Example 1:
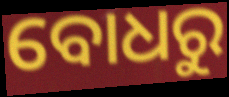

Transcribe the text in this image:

ବୋଧରୁ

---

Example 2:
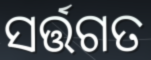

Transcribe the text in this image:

ସର୍ତ୍ତଗତ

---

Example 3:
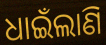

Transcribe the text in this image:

ଧାଇଁଲାଣି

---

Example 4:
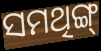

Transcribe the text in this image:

ସମଥିଙ୍ଗ୍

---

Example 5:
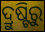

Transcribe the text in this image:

ଦ୍ରୁଷ୍ଟିରୁ